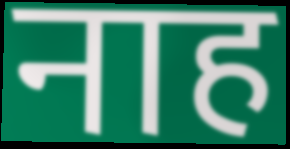
नाह